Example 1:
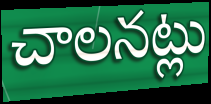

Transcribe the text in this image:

చాలనట్లు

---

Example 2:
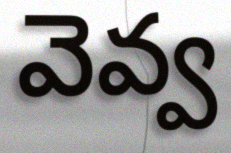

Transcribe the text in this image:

వెవ్వ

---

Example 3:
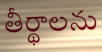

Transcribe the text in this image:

తీర్థాలను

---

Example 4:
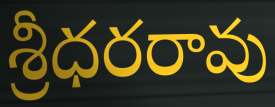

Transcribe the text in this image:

శ్రీధరరావు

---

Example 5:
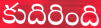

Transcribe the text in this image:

కుదిరింది